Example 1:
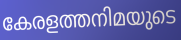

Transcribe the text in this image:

കേരളത്തനിമയുടെ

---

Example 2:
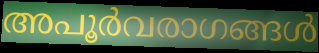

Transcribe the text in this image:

അപൂർവരാഗങ്ങൾ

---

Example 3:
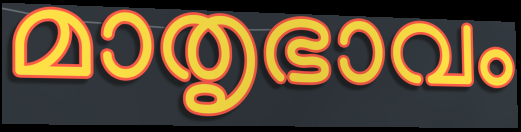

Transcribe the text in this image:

മാതൃഭാവം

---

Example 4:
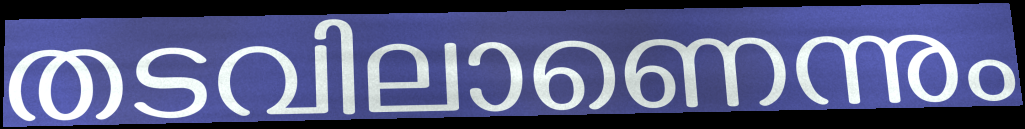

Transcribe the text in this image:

തടവിലാണെന്നും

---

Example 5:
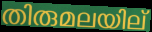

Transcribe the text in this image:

തിരുമലയില്